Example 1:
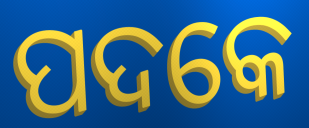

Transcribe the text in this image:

ପଦକେ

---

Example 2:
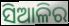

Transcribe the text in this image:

ସିଆଳିର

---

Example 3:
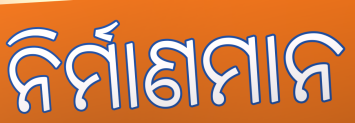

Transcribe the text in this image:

ନିର୍ମାଣମାନ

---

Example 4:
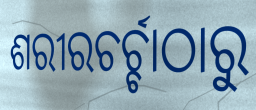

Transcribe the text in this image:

ଶରୀରଚର୍ଚ୍ଚାଠାରୁ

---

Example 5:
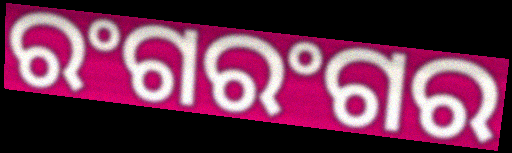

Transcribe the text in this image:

ରଂଗରଂଗର